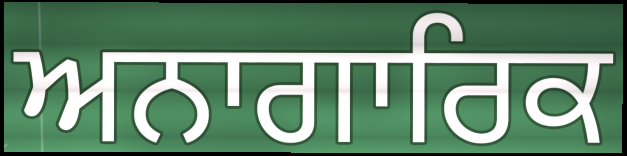
ਅਨਾਗਾਰਿਕ